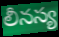
లీనస్య